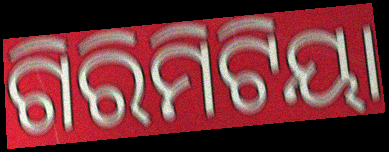
ଗିରିମିଟିୟା